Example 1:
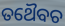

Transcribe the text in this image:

ତଥୈବଚ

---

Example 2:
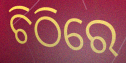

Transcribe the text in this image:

ଚିଠିରେ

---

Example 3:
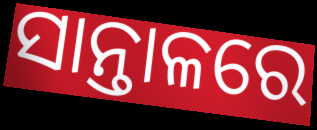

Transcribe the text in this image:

ସାନ୍ତାଳରେ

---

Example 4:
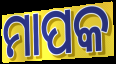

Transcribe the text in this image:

ମାପକ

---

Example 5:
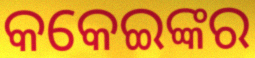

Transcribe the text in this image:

କକେଇଙ୍କର